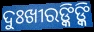
ଦୁଃଖୀରଙ୍କିଙ୍କି